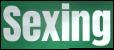
Sexing